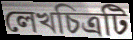
লেখচিত্রটি